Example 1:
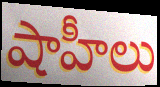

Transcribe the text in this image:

షాహీలు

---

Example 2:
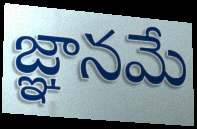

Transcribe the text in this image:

జ్ఞానమే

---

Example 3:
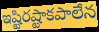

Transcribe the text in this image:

ఇష్టిరష్టాకపాలేన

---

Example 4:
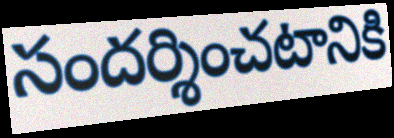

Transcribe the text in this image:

సందర్శించటానికి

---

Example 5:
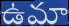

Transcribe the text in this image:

ఉమా